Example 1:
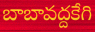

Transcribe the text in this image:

బాబావద్దకేగి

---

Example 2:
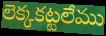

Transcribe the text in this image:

లెక్కకట్టలేము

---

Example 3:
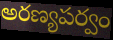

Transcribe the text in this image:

అరణ్యపర్వం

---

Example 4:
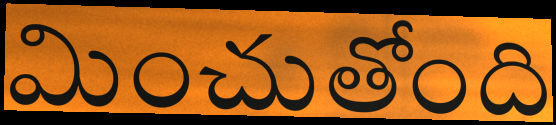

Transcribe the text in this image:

మించుతోంది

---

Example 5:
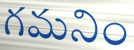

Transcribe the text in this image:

గమనిం